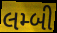
લમ્બી